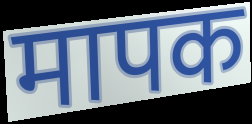
मापक